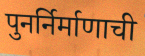
पुनर्निर्माणाची